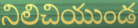
నిలిచియుండ